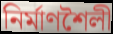
নির্মাণশৈলী